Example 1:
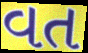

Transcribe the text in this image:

વત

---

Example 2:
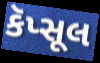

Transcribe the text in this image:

કૅપ્સૂલ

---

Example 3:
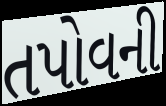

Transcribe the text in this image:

તપોવની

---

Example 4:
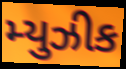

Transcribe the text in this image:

મ્યુઝીક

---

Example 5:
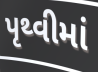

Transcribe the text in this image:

પૃથ્વીમાં